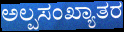
ಅಲ್ಪಸಂಖ್ಯಾತರ